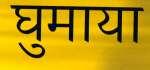
घुमाया